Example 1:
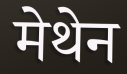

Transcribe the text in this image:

मेथेन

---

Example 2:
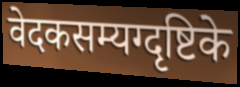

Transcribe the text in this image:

वेदकसम्यग्दृष्टिके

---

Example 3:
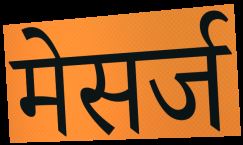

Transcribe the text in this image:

मेसर्ज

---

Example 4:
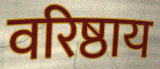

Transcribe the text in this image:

वरिष्ठाय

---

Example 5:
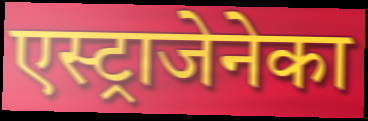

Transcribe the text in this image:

एस्‍ट्राजेनेका